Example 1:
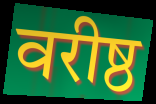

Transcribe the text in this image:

वरीष्ठ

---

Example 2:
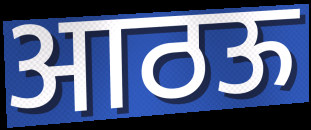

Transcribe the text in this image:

आठऊ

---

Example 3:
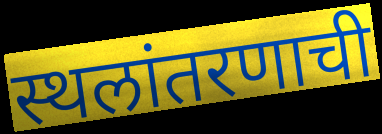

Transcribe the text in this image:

स्थलांतरणाची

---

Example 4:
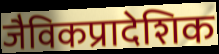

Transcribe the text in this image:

जैविकप्रादेशिक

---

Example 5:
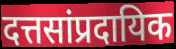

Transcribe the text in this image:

दत्तसांप्रदायिक